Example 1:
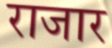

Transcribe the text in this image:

राजार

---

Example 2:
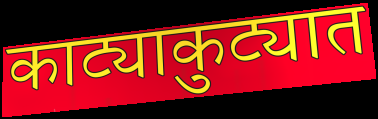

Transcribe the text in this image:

काट्याकुट्यात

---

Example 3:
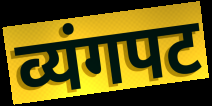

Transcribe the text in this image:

व्यंगपट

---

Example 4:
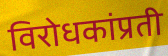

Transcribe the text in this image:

विरोधकांप्रती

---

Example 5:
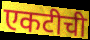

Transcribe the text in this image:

एकटीची